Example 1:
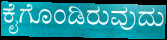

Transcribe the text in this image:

ಕೈಗೊಂಡಿರುವುದು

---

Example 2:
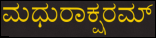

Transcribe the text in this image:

ಮಧುರಾಕ್ಷರಮ್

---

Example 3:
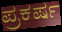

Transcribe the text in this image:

ಪ್ರಕರ್ಷ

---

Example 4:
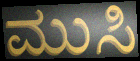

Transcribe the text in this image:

ಮುಸಿ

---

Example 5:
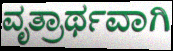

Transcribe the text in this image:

ವೃತ್ರಾರ್ಥವಾಗಿ